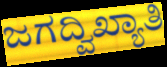
ಜಗದ್ವಿಖ್ಯಾತಿ